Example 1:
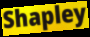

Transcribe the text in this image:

Shapley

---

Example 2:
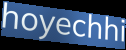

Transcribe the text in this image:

hoyechhi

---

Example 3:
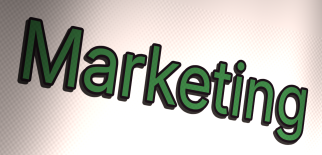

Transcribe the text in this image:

Marketing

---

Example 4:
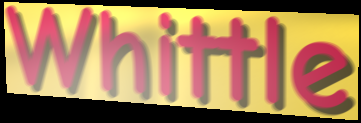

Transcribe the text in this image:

Whittle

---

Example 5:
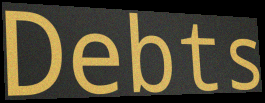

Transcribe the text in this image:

Debts